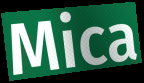
Mica